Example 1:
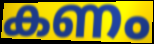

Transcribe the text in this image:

കണം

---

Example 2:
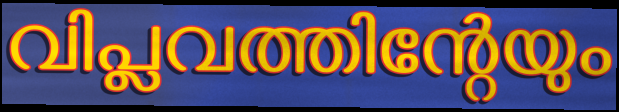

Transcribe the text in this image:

വിപ്ലവത്തിന്റേയും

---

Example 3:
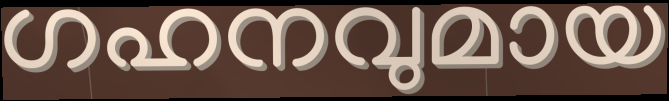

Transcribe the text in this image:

ഗഹനവുമായ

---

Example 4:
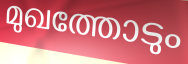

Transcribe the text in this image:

മുഖത്തോടും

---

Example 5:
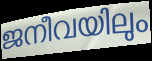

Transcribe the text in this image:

ജനീവയിലും